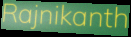
Rajnikanth